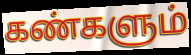
கண்களும்